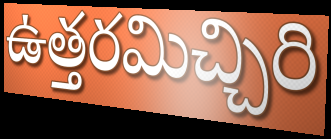
ఉత్తరమిచ్చిరి